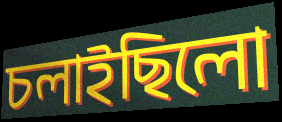
চলাইছিলো